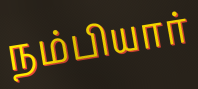
நம்பியார்